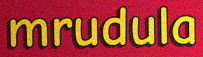
mrudula